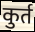
कुर्त